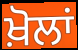
ਖ਼ੋਲਾਂ